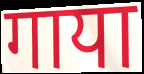
गाया